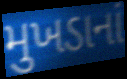
મુખડાનાં